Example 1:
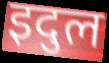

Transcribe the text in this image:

इदुल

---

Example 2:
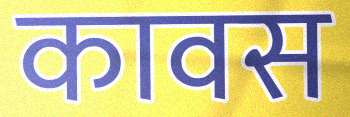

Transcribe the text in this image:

कावस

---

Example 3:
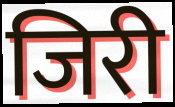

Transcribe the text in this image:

जिरी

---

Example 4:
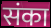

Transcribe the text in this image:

संका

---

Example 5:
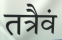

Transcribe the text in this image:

तत्रैवं